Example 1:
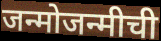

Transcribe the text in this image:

जन्मोजन्मीची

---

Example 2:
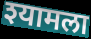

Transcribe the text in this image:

श्यामला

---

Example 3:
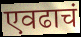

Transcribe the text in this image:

एवढाचं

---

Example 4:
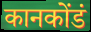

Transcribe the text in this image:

कानकोंडं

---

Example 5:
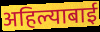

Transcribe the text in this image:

अहिल्याबाई